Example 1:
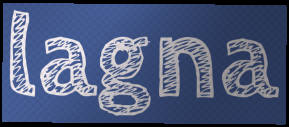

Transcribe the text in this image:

lagna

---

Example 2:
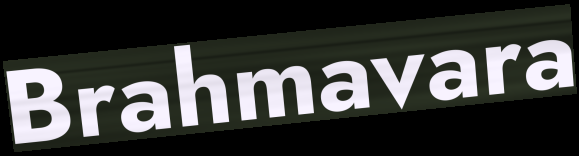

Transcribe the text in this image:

Brahmavara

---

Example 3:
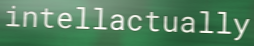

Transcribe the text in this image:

intellactually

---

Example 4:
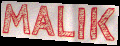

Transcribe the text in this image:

MALIK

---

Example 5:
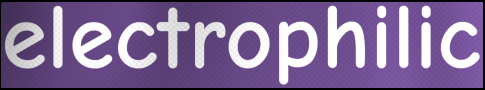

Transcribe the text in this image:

electrophilic